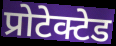
प्रोटेक्टेड